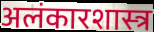
अलंकारशास्त्र